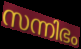
സന്നിഭം